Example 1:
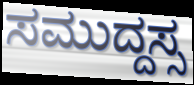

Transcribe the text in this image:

ಸಮುದ್ದಸ್ಸ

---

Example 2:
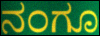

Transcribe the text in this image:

ನಂಗೂ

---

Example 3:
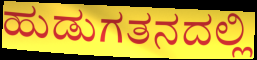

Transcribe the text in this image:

ಹುಡುಗತನದಲ್ಲಿ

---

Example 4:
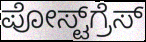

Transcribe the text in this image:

ಪೋಸ್ಟ್‌ಗ್ರೆಸ್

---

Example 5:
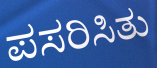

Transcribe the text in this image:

ಪಸರಿಸಿತು